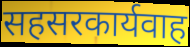
सहसरकार्यवाह